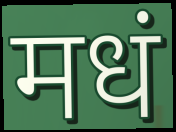
मधं